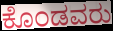
ಕೊಂಡವರು